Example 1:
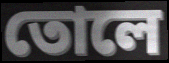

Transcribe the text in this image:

তোলে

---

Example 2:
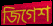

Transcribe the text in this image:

জিগেশ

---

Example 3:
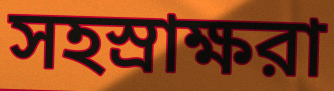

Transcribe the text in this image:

সহস্রাক্ষরা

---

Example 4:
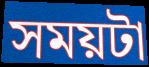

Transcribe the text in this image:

সময়টা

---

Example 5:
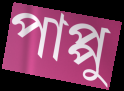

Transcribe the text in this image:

পাপ্পু